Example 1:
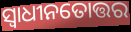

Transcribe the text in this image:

ସ୍ୱାଧୀନତୋତ୍ତର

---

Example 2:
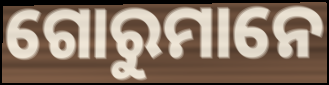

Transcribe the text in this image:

ଗୋରୁମାନେ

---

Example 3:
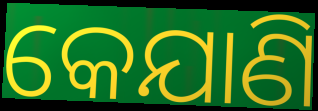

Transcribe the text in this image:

କେଯାଣି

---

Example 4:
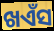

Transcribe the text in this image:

ଖଏଁସ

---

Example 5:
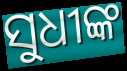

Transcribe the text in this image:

ସୁଧୀଙ୍କ